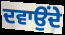
ਦਵਾਉਂਦੇ